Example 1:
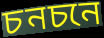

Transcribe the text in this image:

চনচনে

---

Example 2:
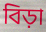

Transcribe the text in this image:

বিড়া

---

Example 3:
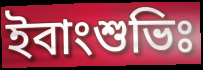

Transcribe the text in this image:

ইবাংশুভিঃ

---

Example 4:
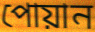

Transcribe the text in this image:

পোয়ান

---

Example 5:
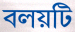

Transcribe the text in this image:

বলয়টি